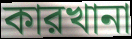
কারখানা